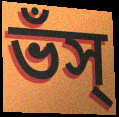
ভঁস্